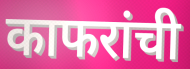
काफरांची